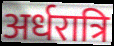
अर्धरात्रि